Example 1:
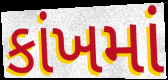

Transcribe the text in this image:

કાંખમાં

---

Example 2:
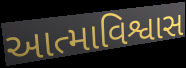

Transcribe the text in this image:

આત્માવિશ્વાસ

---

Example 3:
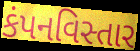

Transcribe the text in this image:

કંપનવિસ્તાર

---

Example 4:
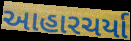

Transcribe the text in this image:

આહારચર્યા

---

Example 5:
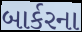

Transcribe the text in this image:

બાર્કરના